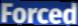
Forced